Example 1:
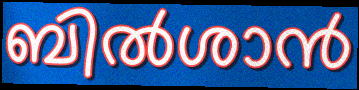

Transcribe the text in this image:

ബിൽശാൻ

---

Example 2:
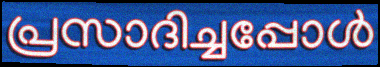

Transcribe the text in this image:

പ്രസാദിച്ചപ്പോൾ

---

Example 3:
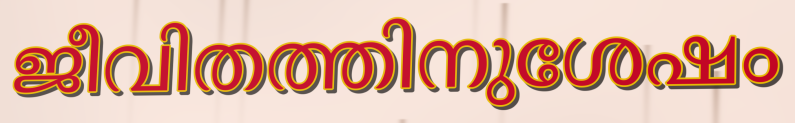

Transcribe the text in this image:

ജീവിതത്തിനുശേഷം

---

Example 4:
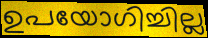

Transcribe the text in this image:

ഉപയോഗിച്ചില്ല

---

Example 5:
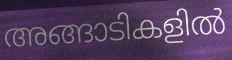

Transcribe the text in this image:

അങ്ങാടികളിൽ